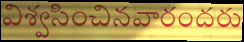
విశ్వసించినవారందరు